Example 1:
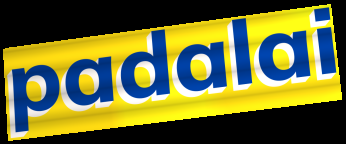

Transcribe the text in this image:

padalai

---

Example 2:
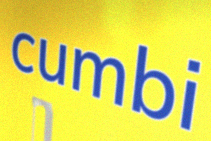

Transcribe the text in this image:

cumbi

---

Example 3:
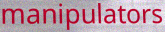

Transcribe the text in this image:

manipulators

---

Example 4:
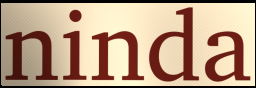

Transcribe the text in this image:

ninda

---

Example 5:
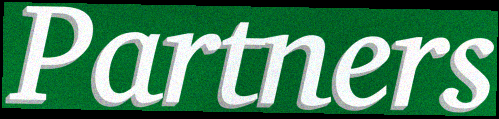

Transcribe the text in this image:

Partners